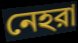
নেহরা